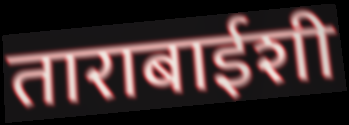
ताराबाईशी